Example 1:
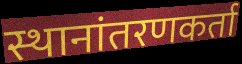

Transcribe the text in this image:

स्थानांतरणकर्ता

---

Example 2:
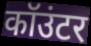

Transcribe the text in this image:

कॉउंटर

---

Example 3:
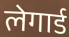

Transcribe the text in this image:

लेगार्ड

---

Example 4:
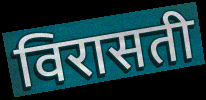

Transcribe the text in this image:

विरासती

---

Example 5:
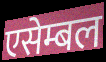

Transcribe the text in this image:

एसेम्बल